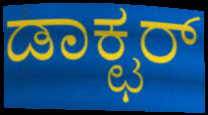
ಡಾಕ್ಟರ್